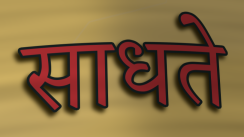
साधते